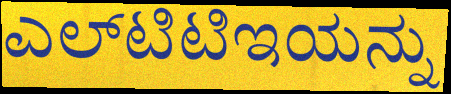
ಎಲ್‌ಟಿಟಿಇಯನ್ನು